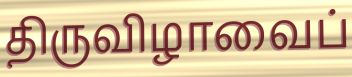
திருவிழாவைப்